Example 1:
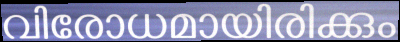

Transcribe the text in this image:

വിരോധമായിരിക്കും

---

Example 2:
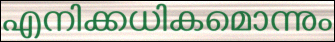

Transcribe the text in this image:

എനിക്കധികമൊന്നും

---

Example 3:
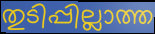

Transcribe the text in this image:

തുടിപ്പില്ലാത്ത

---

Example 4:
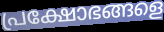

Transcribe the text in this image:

പ്രക്ഷോഭങ്ങളെ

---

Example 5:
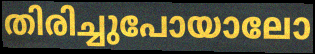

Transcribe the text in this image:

തിരിച്ചുപോയാലോ